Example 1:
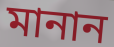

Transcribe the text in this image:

মানান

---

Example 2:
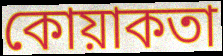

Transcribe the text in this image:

কোয়াকতা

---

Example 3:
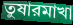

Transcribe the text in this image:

তুষারমাখা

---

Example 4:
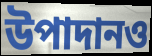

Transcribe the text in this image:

উপাদানও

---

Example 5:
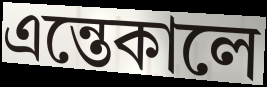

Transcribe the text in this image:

এন্তেকালে